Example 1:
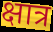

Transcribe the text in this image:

क्षात्र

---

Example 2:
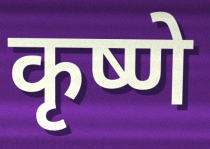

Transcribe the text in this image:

कृष्णे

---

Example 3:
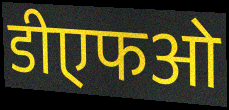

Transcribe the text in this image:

डीएफओ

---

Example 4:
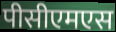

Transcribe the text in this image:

पीसीएमएस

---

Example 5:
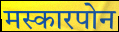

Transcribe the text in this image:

मस्कारपोन